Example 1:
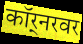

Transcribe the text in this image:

कॉर्नरवर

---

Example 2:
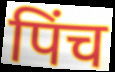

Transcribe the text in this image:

पिंच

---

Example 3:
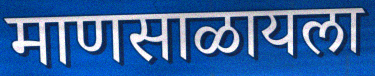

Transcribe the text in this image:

माणसाळायला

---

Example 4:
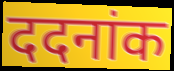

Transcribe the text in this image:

ददनांक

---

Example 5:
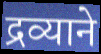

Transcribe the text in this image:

द्रव्याने